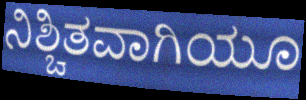
ನಿಶ್ಚಿತವಾಗಿಯೂ